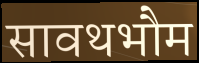
सावथभौम